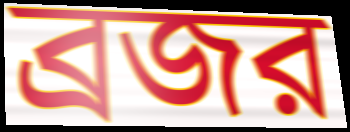
ব্রজর